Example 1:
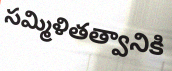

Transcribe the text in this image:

సమ్మిళితత్వానికి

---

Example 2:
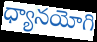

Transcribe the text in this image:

ధ్యానయోగి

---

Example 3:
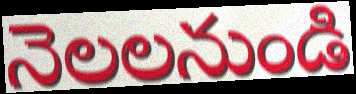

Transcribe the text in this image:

నెలలనుండి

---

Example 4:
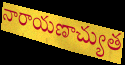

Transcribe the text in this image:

నారాయణాచ్యుత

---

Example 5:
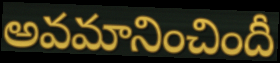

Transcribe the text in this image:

అవమానించిందీ